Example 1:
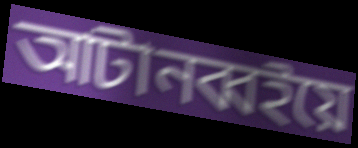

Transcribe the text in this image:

আটানব্বইয়ে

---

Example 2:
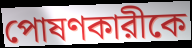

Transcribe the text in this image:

পোষণকারীকে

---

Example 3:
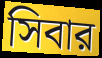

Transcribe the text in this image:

সিবার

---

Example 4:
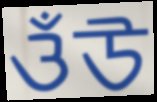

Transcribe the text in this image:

ওঁউ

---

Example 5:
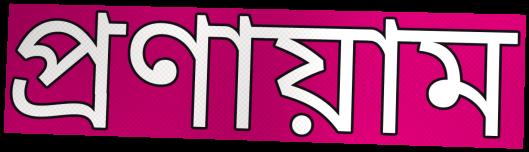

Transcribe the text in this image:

প্রণায়াম